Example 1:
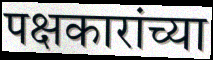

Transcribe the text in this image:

पक्षकारांच्या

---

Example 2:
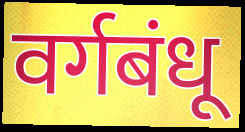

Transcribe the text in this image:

वर्गबंधू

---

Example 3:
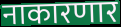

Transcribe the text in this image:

नाकारणार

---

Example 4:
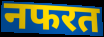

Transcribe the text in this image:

नफरत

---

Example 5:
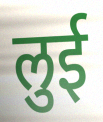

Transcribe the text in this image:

लुई